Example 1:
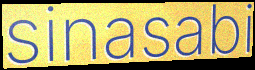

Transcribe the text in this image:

sinasabi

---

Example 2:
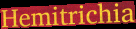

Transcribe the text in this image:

Hemitrichia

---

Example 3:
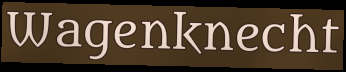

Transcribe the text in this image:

Wagenknecht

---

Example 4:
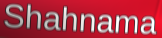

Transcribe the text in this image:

Shahnama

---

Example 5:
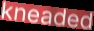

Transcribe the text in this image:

kneaded